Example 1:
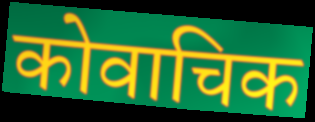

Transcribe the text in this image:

कोवाचिक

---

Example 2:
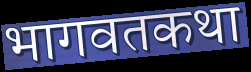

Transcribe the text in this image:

भागवतकथा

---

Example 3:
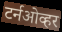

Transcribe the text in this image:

टर्नओव्हर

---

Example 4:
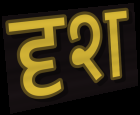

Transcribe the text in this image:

दृश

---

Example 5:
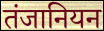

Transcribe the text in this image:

तंजानियन